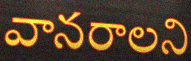
వానరాలని